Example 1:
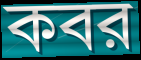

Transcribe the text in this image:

কবর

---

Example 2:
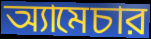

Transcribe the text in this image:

অ্যামেচার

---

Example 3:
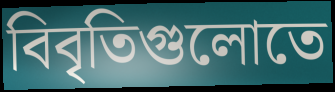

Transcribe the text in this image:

বিবৃতিগুলোতে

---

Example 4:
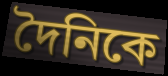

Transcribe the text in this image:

দৈনিকে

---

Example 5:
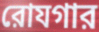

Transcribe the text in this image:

রোযগার